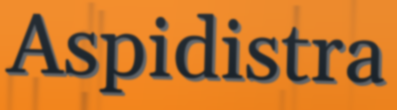
Aspidistra